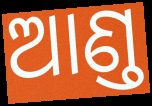
ଆଣ୍ଡ